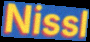
Nissl